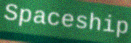
Spaceship